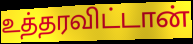
உத்தரவிட்டான்